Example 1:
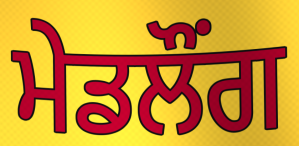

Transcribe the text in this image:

ਮੇਡਲੌਂਗ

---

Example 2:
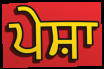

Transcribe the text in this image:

ਪੇਸ਼ਾ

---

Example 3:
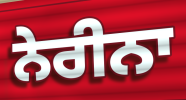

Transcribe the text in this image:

ਨੇਰੀਨਾ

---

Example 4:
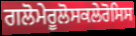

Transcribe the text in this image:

ਗਲੋਮੇਰੂਲੋਸਕਲੇਰੋਸਿਸ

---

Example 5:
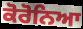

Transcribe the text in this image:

ਕੋਰੋਨਿਆ